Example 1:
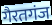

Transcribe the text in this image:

गैरतगंज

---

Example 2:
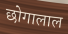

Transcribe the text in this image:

छोगालाल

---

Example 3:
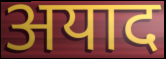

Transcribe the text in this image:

अयाद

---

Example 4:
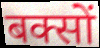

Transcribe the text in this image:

बक्सों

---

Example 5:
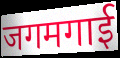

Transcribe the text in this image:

जगमगाई